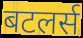
बटलर्स